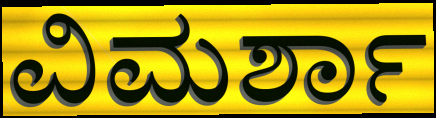
ವಿಮರ್ಶಾ